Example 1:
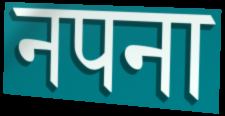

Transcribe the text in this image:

नपना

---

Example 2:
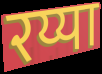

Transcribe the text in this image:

रय्या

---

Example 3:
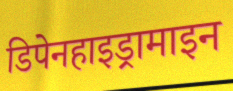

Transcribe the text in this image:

डिपेनहाइड्रामाइन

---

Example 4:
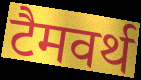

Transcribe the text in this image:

टैमवर्थ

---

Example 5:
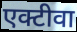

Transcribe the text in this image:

एक्टीवा